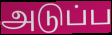
அடுப்ப